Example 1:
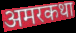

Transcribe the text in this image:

अमरकथा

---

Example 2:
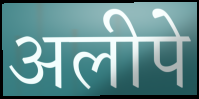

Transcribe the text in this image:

अलीपे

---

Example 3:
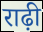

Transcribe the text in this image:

राढ़ी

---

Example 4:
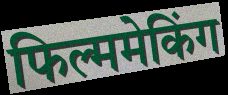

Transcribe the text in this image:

फिल्‍ममेकिंग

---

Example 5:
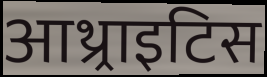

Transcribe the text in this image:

आथ्र्राइटिस